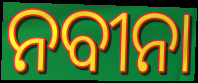
ନବୀନା